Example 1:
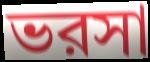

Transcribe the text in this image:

ভরসা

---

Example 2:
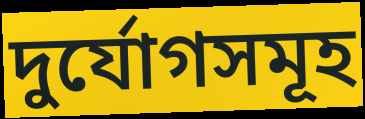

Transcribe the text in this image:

দুর্যোগসমূহ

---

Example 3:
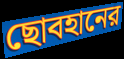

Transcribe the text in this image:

ছোবহানের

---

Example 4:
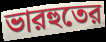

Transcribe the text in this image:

ভারহুতের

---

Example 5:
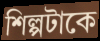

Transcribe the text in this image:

শিল্পটাকে